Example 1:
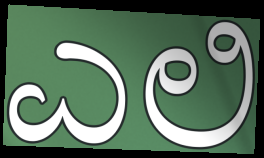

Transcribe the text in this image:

ಎಲಿ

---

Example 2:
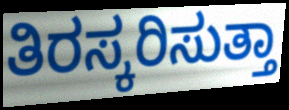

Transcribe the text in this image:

ತಿರಸ್ಕರಿಸುತ್ತಾ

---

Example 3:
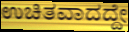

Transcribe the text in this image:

ಉಚಿತವಾದದ್ದೇ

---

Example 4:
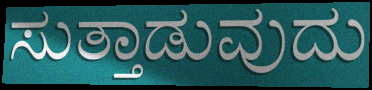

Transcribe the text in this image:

ಸುತ್ತಾಡುವುದು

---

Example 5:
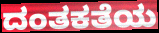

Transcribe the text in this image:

ದಂತಕತೆಯ